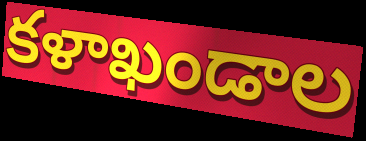
కళాఖండాల